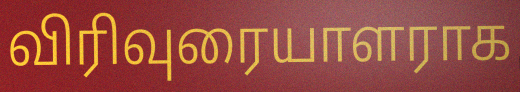
விரிவுரையாளராக